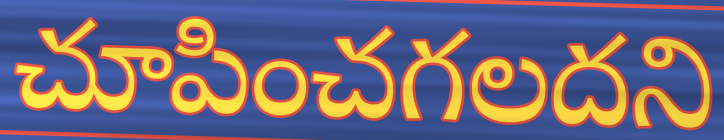
చూపించగలదని